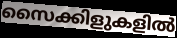
സൈക്കിളുകളിൽ